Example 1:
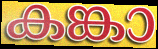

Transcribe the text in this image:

കങ്കാ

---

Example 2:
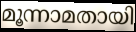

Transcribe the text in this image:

മൂന്നാമതായി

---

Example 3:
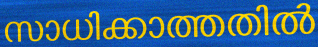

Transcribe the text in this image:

സാധിക്കാത്തതിൽ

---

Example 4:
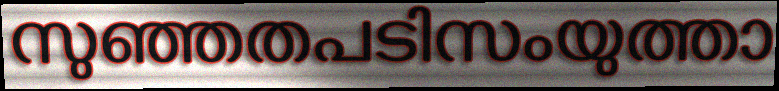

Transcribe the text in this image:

സുഞ്ഞതപടിസംയുത്താ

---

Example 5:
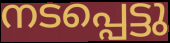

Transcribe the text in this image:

നടപ്പെട്ടു